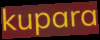
kupara